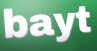
bayt